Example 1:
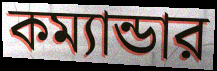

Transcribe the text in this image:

কম্যান্ডার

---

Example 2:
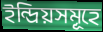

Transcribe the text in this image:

ইন্দ্রিয়সমূহে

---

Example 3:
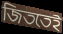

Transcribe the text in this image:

জিততেই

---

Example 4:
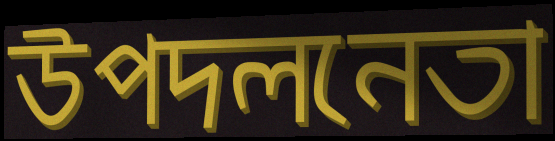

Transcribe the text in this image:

উপদলনেতা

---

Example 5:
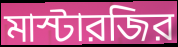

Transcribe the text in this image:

মাস্টারজির